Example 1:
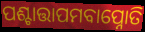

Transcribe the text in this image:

ପଶ୍ଚାତ୍ତାପମବାପ୍ନୋତି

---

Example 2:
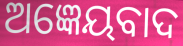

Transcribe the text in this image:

ଅଜ୍ଞେୟବାଦ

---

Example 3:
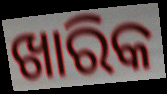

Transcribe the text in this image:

ଖାରିକ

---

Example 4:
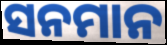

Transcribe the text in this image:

ସନମାନ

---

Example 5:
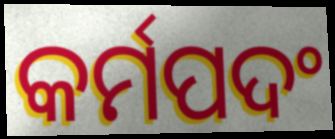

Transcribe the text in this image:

କର୍ମପଦଂ